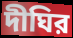
দীঘির